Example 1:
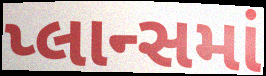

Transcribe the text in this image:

પ્લાન્સમાં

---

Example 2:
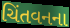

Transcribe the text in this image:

ચિંતવનના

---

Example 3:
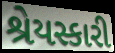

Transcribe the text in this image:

શ્રેયસ્કારી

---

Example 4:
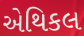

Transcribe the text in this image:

એથિકલ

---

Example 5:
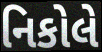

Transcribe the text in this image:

નિકોલે